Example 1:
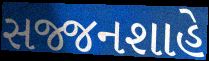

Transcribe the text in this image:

સજ્જનશાહે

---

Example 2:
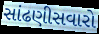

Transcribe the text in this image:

સાંઢણીસવારો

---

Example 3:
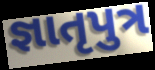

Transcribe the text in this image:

જ્ઞાતૃપુત્ર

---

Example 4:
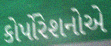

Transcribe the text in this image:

કોર્પોરેશનોએ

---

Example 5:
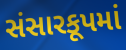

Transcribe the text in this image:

સંસારકૂપમાં